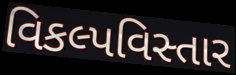
વિકલ્પવિસ્તાર